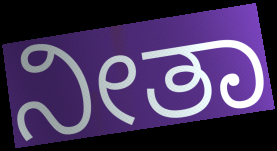
ನೀತಾ